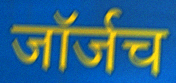
जॉर्जच